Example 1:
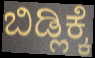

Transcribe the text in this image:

ಬಿಡ್ಲಿಕ್ಕೆ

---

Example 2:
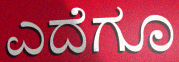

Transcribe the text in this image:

ಎದೆಗೂ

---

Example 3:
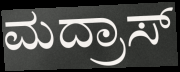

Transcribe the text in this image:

ಮದ್ರಾಸ್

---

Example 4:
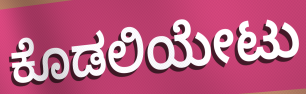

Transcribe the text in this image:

ಕೊಡಲಿಯೇಟು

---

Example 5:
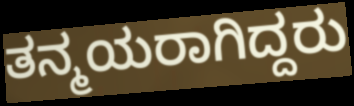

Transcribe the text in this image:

ತನ್ಮಯರಾಗಿದ್ದರು